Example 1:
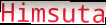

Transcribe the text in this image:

Himsuta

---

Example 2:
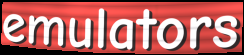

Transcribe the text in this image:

emulators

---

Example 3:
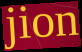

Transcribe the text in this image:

jion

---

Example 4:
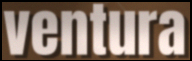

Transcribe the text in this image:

ventura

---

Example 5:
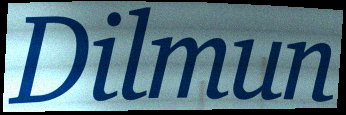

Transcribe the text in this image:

Dilmun